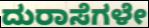
ದುರಾಸೆಗಳೇ